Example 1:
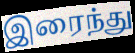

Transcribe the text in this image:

இரைந்து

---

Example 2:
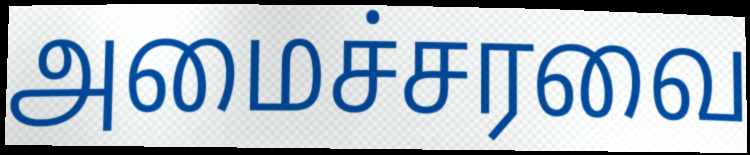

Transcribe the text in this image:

அமைச்சரவை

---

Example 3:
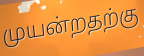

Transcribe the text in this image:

முயன்றதற்கு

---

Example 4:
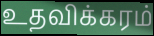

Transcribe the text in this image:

உதவிக்கரம்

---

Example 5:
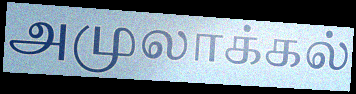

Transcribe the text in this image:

அமுலாக்கல்